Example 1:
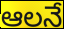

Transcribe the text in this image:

ఆలనే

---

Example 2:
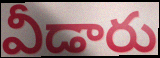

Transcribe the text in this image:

వీడారు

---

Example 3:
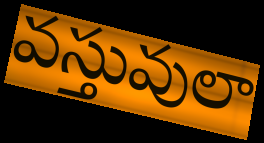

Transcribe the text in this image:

వస్తువులా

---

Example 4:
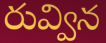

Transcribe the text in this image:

రువ్విన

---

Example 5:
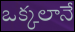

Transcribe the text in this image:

ఒక్కలానే